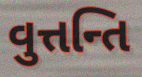
વુત્તન્તિ